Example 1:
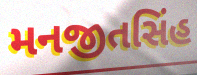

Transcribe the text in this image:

મનજીતસિંહ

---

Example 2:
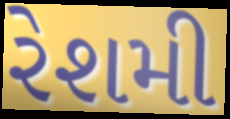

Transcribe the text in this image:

રેશમી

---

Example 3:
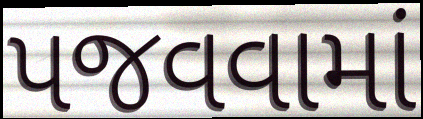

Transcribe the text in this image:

પજવવામાં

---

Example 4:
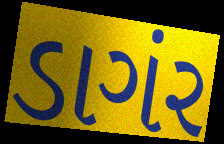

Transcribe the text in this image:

ડાગંર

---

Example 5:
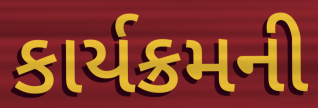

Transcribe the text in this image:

કાર્યક્રમની